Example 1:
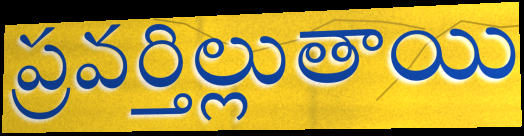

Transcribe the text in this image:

ప్రవర్తిల్లుతాయి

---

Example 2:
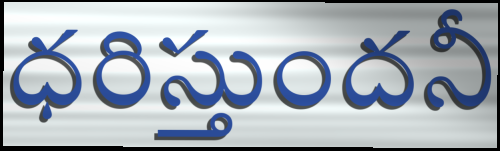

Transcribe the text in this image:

ధరిస్తుందనీ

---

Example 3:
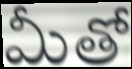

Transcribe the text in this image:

మీతో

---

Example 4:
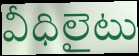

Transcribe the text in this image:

వీధిలైటు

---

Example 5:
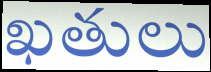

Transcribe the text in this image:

ఖతులు